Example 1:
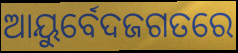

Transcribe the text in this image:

ଆୟୁର୍ବେଦଜଗତରେ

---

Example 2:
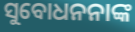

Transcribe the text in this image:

ସୁବୋଧନନାଙ୍କ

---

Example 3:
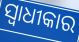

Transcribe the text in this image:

ସ୍ୱାଧୀକାର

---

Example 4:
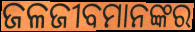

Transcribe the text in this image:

ଜଳଜୀବମାନଙ୍କର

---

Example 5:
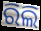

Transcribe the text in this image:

ରିଲି